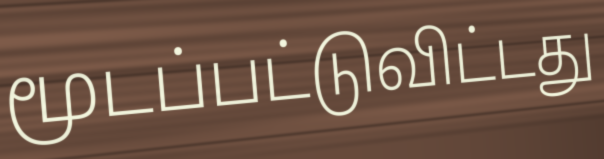
மூடப்பட்டுவிட்டது